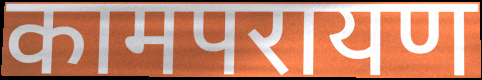
कामपरायण